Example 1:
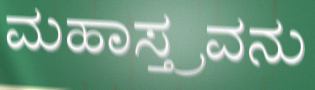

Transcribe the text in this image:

ಮಹಾಸ್ತ್ರವನು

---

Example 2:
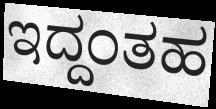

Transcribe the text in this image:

ಇದ್ದಂತಹ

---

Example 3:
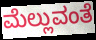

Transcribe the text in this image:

ಮೆಲ್ಲುವಂತೆ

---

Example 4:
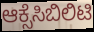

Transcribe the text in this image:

ಆಕ್ಸೆಸಿಬಿಲಿಟಿ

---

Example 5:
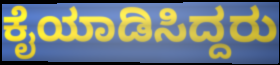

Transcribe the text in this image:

ಕೈಯಾಡಿಸಿದ್ದರು